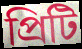
প্রিটি